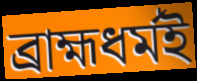
ব্রাহ্মধর্মই